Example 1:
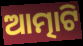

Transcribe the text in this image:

ଆତ୍ମାଟି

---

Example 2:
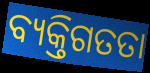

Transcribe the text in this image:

ବ୍ୟକ୍ତିଗତତା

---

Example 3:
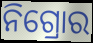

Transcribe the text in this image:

ନିଗ୍ରୋର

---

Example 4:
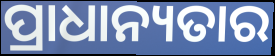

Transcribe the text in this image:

ପ୍ରାଧାନ୍ୟତାର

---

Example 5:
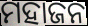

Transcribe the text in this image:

ମହାଜନ